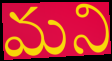
మని